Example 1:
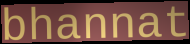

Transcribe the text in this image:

bhannat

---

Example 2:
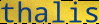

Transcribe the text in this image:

thalis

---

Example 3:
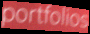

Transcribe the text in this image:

portfolios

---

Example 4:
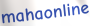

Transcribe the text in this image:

mahaonline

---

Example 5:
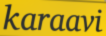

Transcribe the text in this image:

karaavi